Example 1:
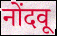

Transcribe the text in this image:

नोंदवू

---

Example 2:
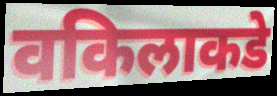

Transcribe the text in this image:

वकिलाकडे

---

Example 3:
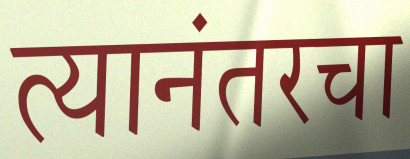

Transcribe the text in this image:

त्यानंतरचा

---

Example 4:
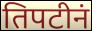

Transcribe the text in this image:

तिपटीनं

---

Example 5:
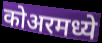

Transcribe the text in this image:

कोअरमध्ये